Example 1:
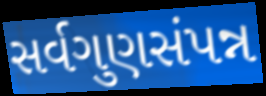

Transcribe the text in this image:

સર્વગુણસંપન્ન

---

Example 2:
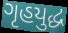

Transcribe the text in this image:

ગૃહયુદ્ધ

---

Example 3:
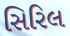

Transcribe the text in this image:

સિરિલ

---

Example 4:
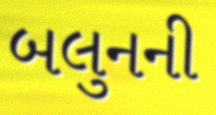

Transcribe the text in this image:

બલુનની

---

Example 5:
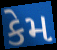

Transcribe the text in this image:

કેમ